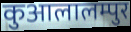
कुआलालम्पुर